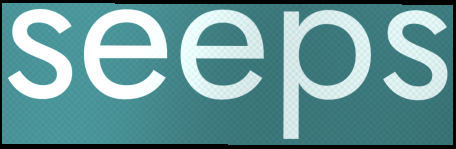
seeps